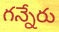
గన్నేరు